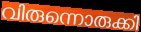
വിരുന്നൊരുക്കി